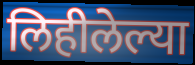
लिहीलेल्या